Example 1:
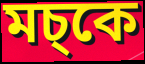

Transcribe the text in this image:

মচ্কে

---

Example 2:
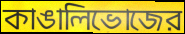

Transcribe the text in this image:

কাঙালিভোজের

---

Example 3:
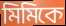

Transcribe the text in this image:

মিমিকে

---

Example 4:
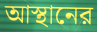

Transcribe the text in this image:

আস্থানের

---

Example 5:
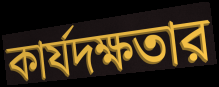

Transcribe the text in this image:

কার্যদক্ষতার